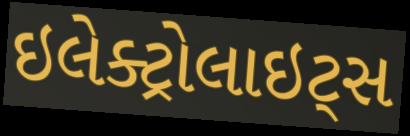
ઇલેક્ટ્રોલાઇટ્સ